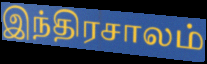
இந்திரசாலம்